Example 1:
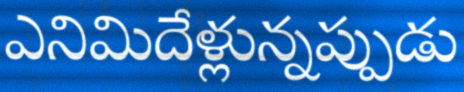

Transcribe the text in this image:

ఎనిమిదేళ్లున్నప్పుడు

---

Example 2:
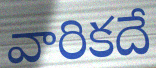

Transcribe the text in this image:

వారికదే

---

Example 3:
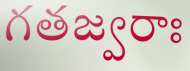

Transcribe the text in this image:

గతజ్వరాః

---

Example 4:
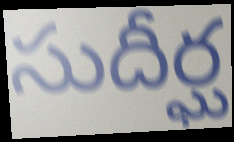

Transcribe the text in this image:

సుదీర్ఘ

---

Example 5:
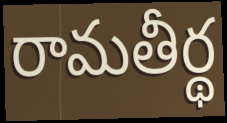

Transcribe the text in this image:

రామతీర్థ